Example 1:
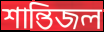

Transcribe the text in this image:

শান্তিজল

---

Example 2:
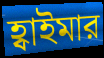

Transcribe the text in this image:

হ্বাইমার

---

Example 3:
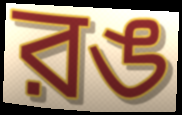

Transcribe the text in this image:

রঙ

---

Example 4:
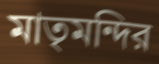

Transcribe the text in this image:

মাতৃমন্দির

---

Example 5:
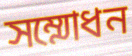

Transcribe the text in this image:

সম্মোধন